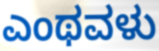
ಎಂಥವಳು